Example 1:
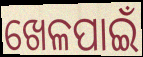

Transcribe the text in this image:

ଖେଳପାଇଁ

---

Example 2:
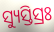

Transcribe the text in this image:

ସ୍ୟୁସ୍ତିସ୍ରଃ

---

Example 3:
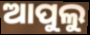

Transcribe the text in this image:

ଆପୁଲୁ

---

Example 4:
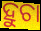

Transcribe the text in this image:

ହୁଚା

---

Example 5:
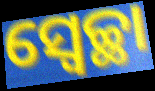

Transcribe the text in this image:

ସ୍ବେଚ୍ଛା